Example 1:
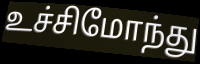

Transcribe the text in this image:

உச்சிமோந்து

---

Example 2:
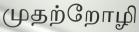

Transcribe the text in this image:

முதற்றோழி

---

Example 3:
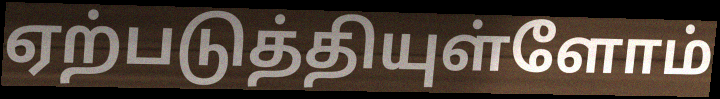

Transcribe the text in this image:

ஏற்படுத்தியுள்ளோம்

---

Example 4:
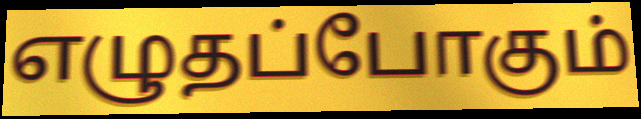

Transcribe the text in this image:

எழுதப்போகும்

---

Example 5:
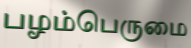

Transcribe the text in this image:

பழம்பெருமை